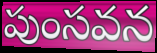
పుంసవన